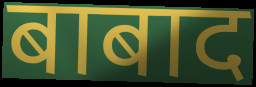
बाबाद